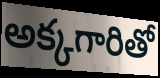
అక్కగారితో